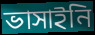
ভাসাইনি